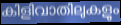
കിളിവാതിലുകളും